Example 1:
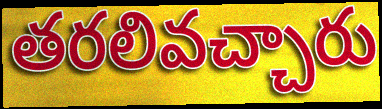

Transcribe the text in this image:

తరలివచ్చారు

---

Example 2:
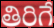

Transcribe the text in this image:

తిరిగే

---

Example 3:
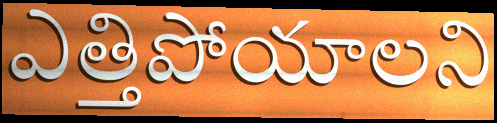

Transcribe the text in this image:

ఎత్తిపోయాలని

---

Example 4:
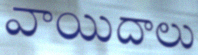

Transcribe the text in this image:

వాయిదాలు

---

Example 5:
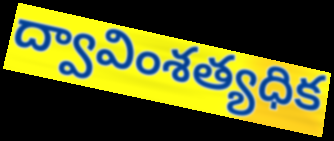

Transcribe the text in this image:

ద్వావింశత్యధిక